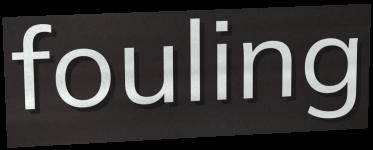
fouling